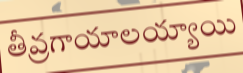
తీవ్రగాయాలయ్యాయి